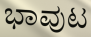
ಭಾವುಟ